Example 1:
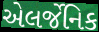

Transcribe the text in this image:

એલર્જેનિક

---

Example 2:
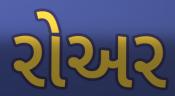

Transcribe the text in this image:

રોઅર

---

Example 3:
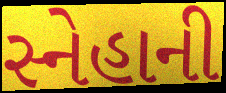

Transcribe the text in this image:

સ્નેહાની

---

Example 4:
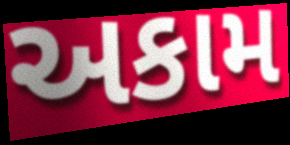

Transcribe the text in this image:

અકામ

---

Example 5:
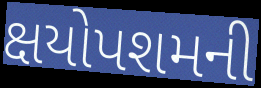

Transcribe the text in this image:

ક્ષયોપશમની